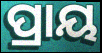
ପ୍ରାୟ